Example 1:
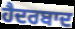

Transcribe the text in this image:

ਹੈਦਰਬਾਦ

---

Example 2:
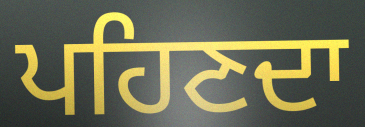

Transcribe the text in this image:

ਪਹਿਣਦਾ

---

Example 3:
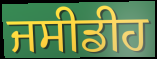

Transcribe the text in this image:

ਜਸੀਡੀਹ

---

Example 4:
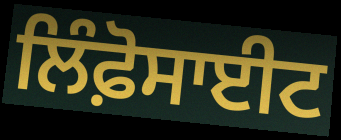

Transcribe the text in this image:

ਲਿੰਫ਼ੋਸਾਈਟ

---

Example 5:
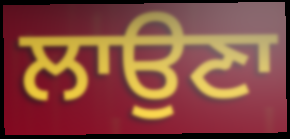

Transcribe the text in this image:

ਲਾਉਣਾ